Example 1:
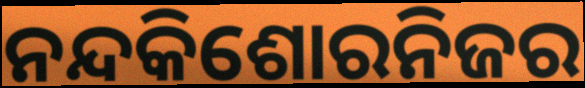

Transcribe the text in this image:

ନନ୍ଦକିଶୋରନିଜର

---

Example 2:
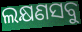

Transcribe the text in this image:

ଲକ୍ଷଣସବୁ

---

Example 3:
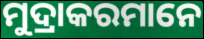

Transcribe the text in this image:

ମୁଦ୍ରାକରମାନେ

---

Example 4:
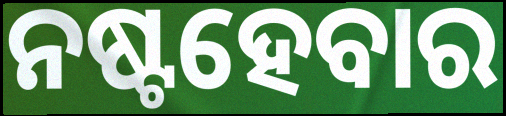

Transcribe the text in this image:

ନଷ୍ଟହେବାର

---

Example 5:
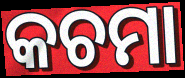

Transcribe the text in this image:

କଚମା